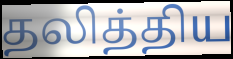
தலித்திய